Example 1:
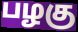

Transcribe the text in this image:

பழகு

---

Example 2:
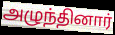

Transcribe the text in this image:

அழுந்தினார்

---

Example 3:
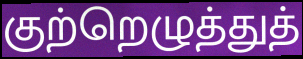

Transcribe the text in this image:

குற்றெழுத்துத்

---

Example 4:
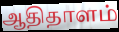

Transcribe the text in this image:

ஆதிதாளம்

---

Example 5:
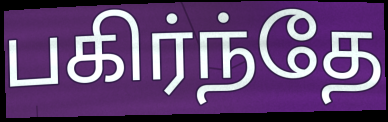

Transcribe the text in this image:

பகிர்ந்தே